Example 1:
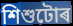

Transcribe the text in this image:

শিশুটোৰ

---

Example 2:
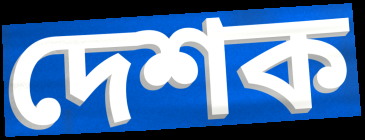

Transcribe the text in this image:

দেশক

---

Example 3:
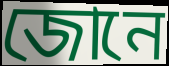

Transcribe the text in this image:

জোনে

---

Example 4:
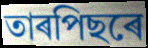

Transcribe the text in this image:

তাৰপিছৰে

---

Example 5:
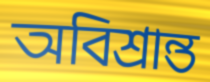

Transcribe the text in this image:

অবিশ্ৰান্ত